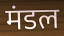
मंडल